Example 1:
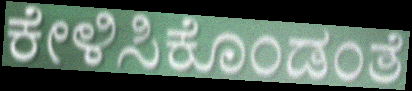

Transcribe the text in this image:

ಕೇಳಿಸಿಕೊಂಡಂತೆ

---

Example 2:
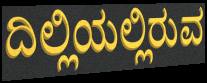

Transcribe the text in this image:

ದಿಲ್ಲಿಯಲ್ಲಿರುವ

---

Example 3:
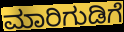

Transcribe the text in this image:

ಮಾರಿಗುಡಿಗೆ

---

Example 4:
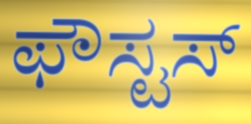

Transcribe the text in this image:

ಫೌಸ್ಟಸ್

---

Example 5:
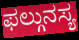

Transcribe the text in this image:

ಫಲ್ಗುನಸ್ಯ